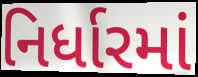
નિર્ધારમાં